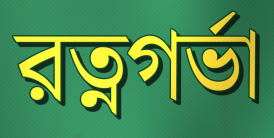
রত্নগর্ভা